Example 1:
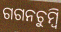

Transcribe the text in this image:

ଗଗନଚୁମ୍ବି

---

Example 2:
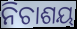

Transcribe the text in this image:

ନିଚାଶୟ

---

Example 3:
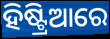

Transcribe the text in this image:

ହିଷ୍ଟ୍ରିଆରେ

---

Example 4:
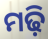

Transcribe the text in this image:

ମଢ଼ି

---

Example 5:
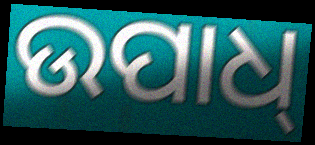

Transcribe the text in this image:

ଉପାଧ୍